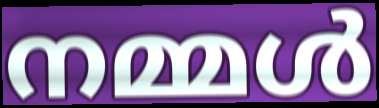
നമ്മൾ